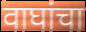
वाघांचा